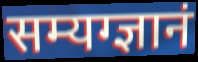
सम्यग्ज्ञानं